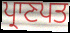
ਪ੍ਰਾਣਪਤ